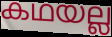
കഥയല്ല